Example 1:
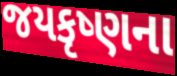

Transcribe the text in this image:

જયકૃષ્ણના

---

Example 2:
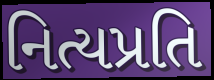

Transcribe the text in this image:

નિત્યપ્રતિ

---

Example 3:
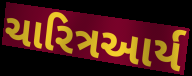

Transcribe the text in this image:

ચારિત્રઆર્ય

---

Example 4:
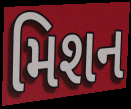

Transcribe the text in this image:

મિશન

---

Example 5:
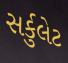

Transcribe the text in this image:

સર્કુલેટ